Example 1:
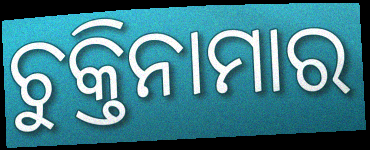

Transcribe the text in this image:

ଚୁକ୍ତିନାମାର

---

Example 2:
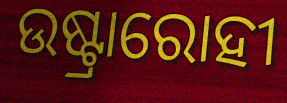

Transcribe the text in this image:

ଉଷ୍ଟ୍ରାରୋହୀ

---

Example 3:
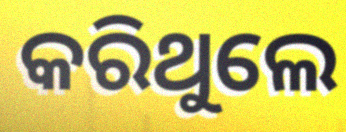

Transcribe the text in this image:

କରିଥୁଲେ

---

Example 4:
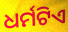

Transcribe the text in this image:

ଧର୍ମଟିଏ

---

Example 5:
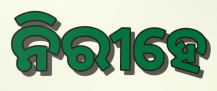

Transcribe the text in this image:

ନିରୀହେ